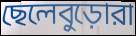
ছেলেবুড়োরা